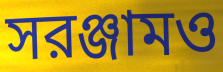
সরঞ্জামও